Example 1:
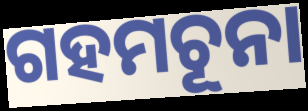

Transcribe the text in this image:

ଗହମଚୂନା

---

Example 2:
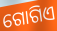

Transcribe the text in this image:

ଗୋଗିଏ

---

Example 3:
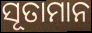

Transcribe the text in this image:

ସୂତାମାନ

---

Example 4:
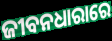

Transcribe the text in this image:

ଜୀବନଧାରାରେ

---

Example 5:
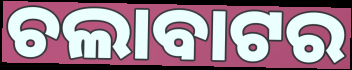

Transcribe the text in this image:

ଚଲାବାଟର